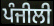
ਪੰਜੀਲੀ